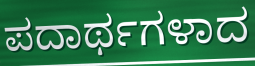
ಪದಾರ್ಥಗಳಾದ